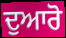
ਦੁਆਰੋ